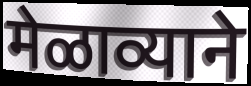
मेळाव्याने